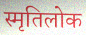
स्मृतिलोक